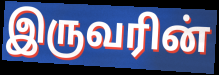
இருவரின்